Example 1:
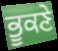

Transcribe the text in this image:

ਭੂਕਣੇ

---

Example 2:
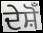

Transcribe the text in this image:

ਦੇਸ਼ੋਁ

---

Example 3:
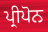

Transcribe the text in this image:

ਪ੍ਰੀਪੋਨ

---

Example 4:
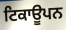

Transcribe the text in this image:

ਟਿਕਾਊਪਨ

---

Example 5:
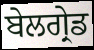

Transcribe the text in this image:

ਬੇਲਗ੍ਰੇਡ